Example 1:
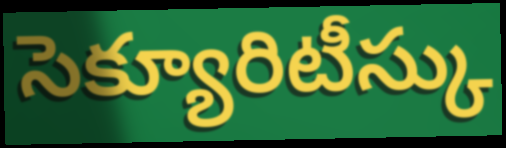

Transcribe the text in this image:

సెక్యూరిటీస్కు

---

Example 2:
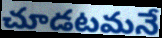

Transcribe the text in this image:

చూడటమనే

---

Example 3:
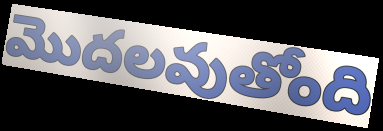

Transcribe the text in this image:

మొదలవుతోంది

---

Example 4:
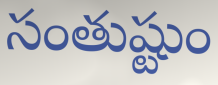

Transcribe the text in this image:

సంతుష్టుం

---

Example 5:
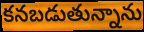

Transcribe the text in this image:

కనబడుతున్నాను